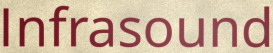
Infrasound